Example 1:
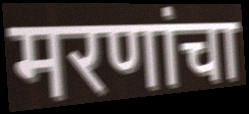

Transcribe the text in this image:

मरणांचा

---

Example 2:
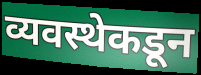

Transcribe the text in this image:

व्यवस्थेकडून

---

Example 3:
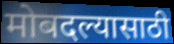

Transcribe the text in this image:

मोबदल्यासाठी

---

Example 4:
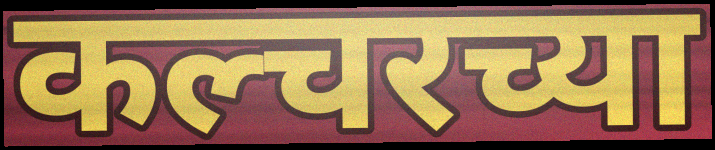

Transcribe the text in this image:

कल्चरच्या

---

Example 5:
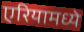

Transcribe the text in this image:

एरियामध्ये